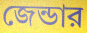
জেন্ডার